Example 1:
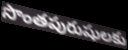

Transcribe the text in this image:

సొంతపురుషులకు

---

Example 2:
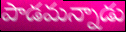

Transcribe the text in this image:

పాడమన్నాడు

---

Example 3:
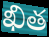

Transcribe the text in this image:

ఖిత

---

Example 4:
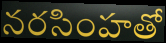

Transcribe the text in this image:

నరసింహతో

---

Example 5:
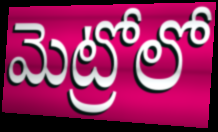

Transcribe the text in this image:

మెట్రోలో